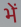
भें